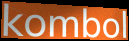
kombol